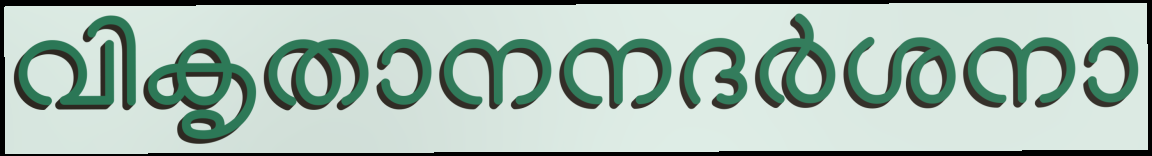
വികൃതാനനദർശനാ